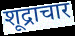
शूद्राचार